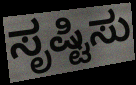
ಸೃಷ್ಟಿಸು